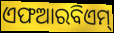
ଏଫଆରବିଏମ୍